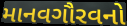
માનવગૌરવનો